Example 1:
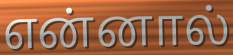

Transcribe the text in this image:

என்னால்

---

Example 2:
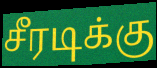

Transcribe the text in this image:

சீரடிக்கு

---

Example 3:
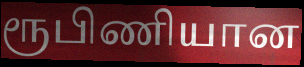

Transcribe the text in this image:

ரூபிணியான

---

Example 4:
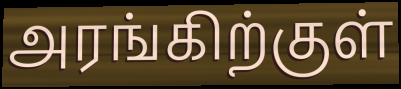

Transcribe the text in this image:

அரங்கிற்குள்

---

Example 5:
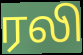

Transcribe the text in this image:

ரலி